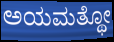
ಅಯಮತ್ಥೋ